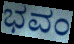
ಭವಂ